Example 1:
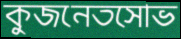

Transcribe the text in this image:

কুজনেতসোভ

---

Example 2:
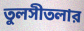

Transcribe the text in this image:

তুলসীতলার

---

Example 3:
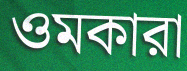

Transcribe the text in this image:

ওমকারা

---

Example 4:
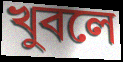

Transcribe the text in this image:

খুবলে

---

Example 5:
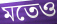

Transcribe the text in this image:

মতেও